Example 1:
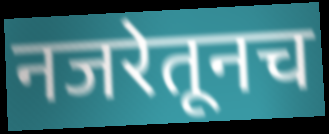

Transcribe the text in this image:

नजरेतूनच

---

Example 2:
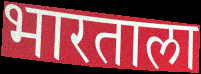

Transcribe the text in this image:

भारताला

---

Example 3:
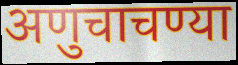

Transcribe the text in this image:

अणुचाचण्या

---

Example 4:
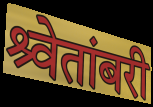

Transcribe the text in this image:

श्र्वेतांबरी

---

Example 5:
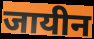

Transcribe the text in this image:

जायीन